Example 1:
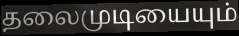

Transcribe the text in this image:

தலைமுடியையும்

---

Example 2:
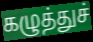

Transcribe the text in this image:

கழுத்துச்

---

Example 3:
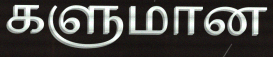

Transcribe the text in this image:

களுமான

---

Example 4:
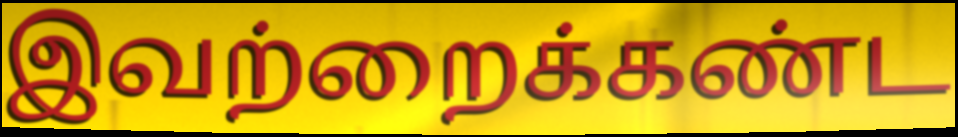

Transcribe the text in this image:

இவற்றைக்கண்ட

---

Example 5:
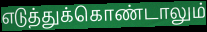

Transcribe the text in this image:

எடுத்துக்கொண்டாலும்